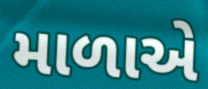
માળાએ